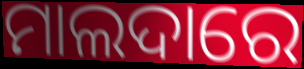
ମାଲଦାରେ